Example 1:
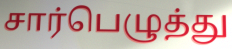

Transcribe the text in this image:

சார்பெழுத்து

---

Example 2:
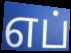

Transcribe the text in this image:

எப்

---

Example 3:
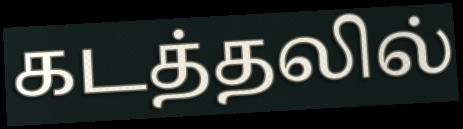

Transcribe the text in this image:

கடத்தலில்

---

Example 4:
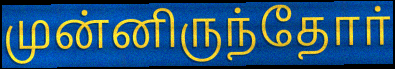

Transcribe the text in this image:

முன்னிருந்தோர்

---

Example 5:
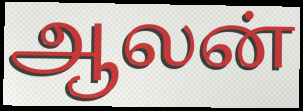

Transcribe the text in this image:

ஆலன்